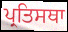
ਪ੍ਰਤਿਸਥਾ